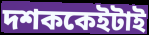
দশককেইটাই